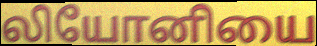
லியோனியை